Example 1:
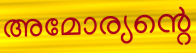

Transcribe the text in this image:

അമോര്യന്റെ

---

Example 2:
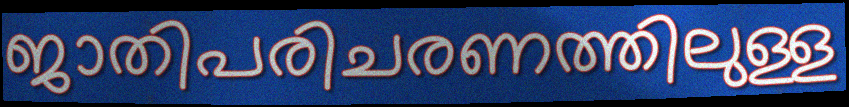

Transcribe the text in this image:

ജാതിപരിചരണത്തിലുള്ള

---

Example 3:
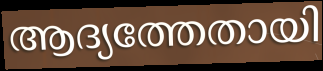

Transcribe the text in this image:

ആദ്യത്തേതായി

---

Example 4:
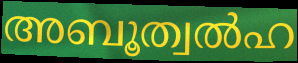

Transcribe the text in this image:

അബൂത്വൽഹ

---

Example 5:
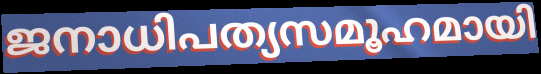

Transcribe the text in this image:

ജനാധിപത്യസമൂഹമായി